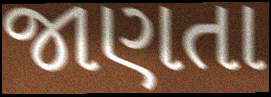
જાણતા